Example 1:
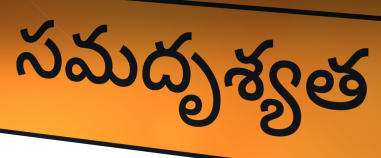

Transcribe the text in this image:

సమదృశ్యత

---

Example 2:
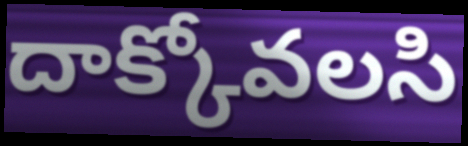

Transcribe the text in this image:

దాక్కోవలసి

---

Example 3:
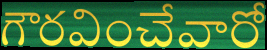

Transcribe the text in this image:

గౌరవించేవారో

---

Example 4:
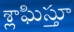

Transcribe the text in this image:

శ్లాఘిస్తూ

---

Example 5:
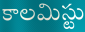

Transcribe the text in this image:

కాలమిస్టు